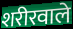
शरीरवाले